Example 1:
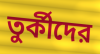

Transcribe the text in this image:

তুর্কীদের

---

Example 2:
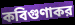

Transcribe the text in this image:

কবিগুণাকর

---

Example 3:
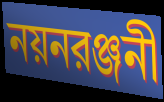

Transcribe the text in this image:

নয়নরঞ্জনী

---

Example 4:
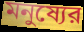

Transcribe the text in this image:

মনুষ্যের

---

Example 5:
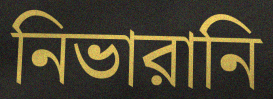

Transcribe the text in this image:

নিভারানি